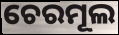
ଚେରମୂଲ